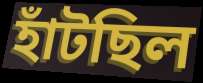
হাঁটছিল